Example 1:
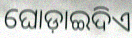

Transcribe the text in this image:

ଘୋଡ଼ାଇଦିଏ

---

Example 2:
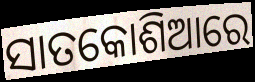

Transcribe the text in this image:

ସାତକୋଶିଆରେ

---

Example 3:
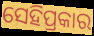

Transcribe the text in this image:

ସେହିପ୍ରକାର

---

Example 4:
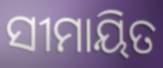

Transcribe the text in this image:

ସୀମାୟିତ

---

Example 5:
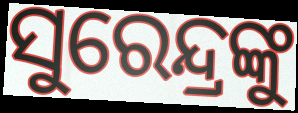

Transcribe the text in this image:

ସୁରେନ୍ଦ୍ରଙ୍କୁ